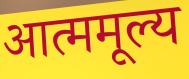
आत्ममूल्य